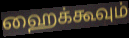
ஹைக்கூவும்